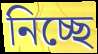
নিচ্ছে